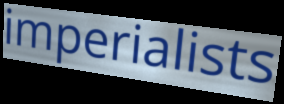
imperialists